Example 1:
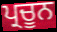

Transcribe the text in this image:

ਪ੍ਰਚੂਨ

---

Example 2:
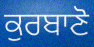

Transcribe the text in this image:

ਕੁਰਬਾਣੋ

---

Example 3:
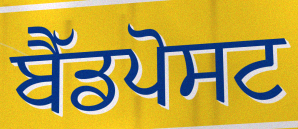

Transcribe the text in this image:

ਬੈੱਡਪੋਸਟ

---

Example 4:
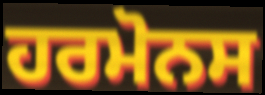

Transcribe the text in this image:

ਹਰਮੋਨਸ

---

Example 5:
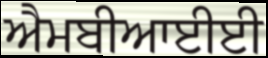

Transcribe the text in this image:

ਐਮਬੀਆਈਈ